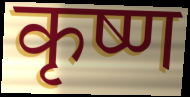
कृष्ण